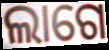
ଲାଗେ